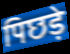
पिछड़े